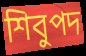
শিবুপদ